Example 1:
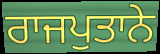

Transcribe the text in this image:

ਰਾਜਪੁਤਾਨੇ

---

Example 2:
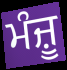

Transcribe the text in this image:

ਮੰਜ਼ੂ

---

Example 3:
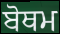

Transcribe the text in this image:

ਬੋਥਮ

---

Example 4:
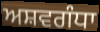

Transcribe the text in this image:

ਅਸ਼ਵਗੰਧਾ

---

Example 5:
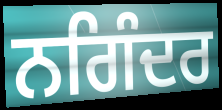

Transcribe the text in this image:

ਨਗਿੰਦਰ